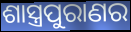
ଶାସ୍ତ୍ରପୁରାଣର